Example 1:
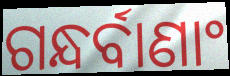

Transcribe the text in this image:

ଗନ୍ଧର୍ବାଣାଂ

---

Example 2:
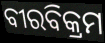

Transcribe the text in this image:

ବୀରବିକ୍ରମ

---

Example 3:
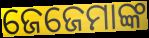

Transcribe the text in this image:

ଜେଜେମାଙ୍କ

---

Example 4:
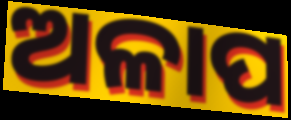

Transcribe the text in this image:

ଅଳାପ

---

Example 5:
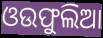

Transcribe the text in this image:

ଓଉଫୁଲିଆ